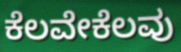
ಕೆಲವೇಕೆಲವು